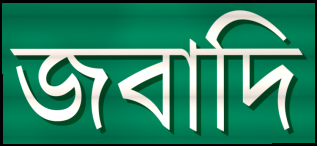
জবাদি